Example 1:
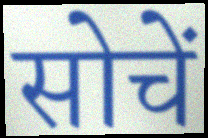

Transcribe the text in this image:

सोचें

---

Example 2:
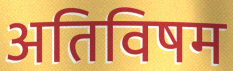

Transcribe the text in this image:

अतिविषम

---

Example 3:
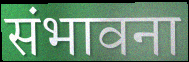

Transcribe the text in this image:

संभावना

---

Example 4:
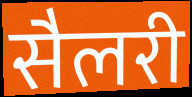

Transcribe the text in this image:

सैलरी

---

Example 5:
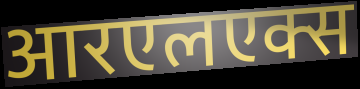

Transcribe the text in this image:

आरएलएक्स